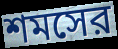
শমসের